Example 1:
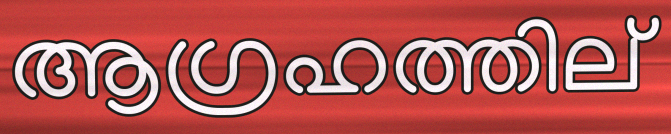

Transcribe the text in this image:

ആഗ്രഹത്തില്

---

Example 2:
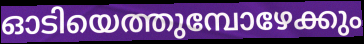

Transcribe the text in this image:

ഓടിയെത്തുമ്പോഴേക്കും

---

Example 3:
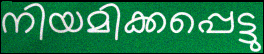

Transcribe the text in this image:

നിയമിക്കപ്പെട്ടു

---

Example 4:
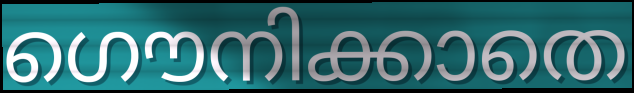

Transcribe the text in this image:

ഗൌനിക്കാതെ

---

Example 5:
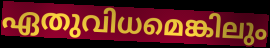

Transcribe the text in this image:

ഏതുവിധമെങ്കിലും